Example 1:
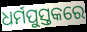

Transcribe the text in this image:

ଧର୍ମପୁସ୍ତକରେ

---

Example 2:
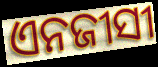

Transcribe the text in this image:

ଏନଜୀସୀ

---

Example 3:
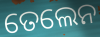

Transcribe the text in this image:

ତେଲେନ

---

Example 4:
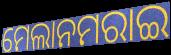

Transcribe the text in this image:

ମେଲାନମରାଇ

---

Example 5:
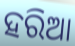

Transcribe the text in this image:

ହରିଆ